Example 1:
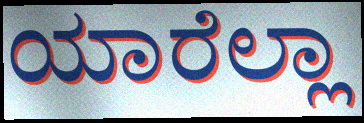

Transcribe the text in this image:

ಯಾರೆಲ್ಲಾ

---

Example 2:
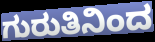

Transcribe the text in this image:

ಗುರುತಿನಿಂದ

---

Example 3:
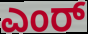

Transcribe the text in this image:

ಎಂರ್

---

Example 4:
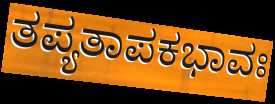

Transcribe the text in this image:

ತಪ್ಯತಾಪಕಭಾವಃ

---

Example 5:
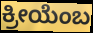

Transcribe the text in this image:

ಕ್ರೀಯೆಂಬ